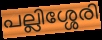
പല്ലിശ്ശേരി